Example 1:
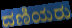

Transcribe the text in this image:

ದಣಿಯರು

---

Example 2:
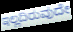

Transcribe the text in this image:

ಇಲ್ಲದಿರುವುದೇ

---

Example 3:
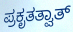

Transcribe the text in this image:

ಪ್ರಕೃತತ್ವಾತ್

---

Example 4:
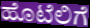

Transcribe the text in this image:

ಹೊಟೆಲಿಗೆ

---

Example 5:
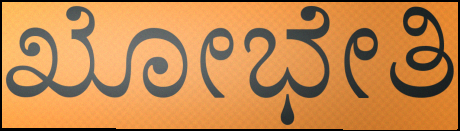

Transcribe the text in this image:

ಖೋಭೇತಿ